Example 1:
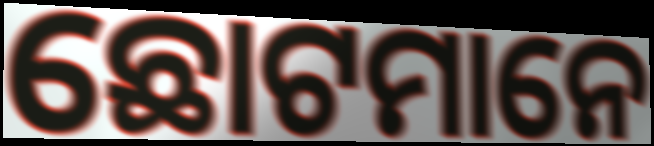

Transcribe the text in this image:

ଛୋଟମାନେ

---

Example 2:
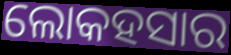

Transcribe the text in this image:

ଲୋକହସାର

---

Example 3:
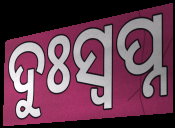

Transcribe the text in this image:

ଦୁଃସ୍ଵପ୍ନ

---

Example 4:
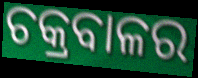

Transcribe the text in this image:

ଚକ୍ରବାଳର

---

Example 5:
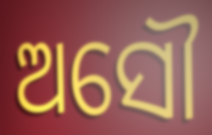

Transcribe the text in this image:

ଅସୌ